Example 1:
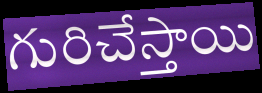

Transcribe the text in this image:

గురిచేస్తాయి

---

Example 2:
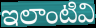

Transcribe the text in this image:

ఇలాంటివి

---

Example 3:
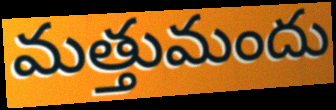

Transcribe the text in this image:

మత్తుమందు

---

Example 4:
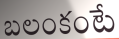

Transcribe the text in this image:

బలంకంటే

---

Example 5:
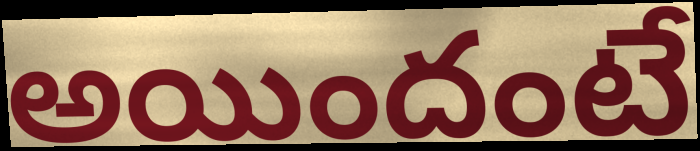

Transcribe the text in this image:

అయిందంటే